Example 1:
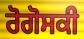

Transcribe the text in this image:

ਰੋਗੋਸਕੀ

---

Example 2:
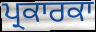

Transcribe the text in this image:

ਪ੍ਰਕਾਰਕਾ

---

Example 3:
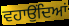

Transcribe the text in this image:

ਵਹਾਉਂਦਿਆਂ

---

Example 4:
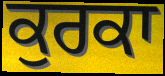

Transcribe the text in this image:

ਕੁਰਕਾ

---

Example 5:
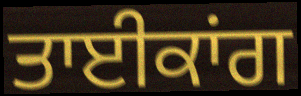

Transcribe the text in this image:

ਤਾਈਕਾਂਗ